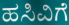
ಹಸಿವಿಗೆ